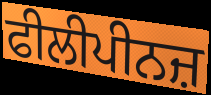
ਫੀਲੀਪੀਨਜ਼